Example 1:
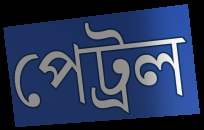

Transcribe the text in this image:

পেট্রল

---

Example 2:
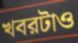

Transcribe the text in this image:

খবরটাও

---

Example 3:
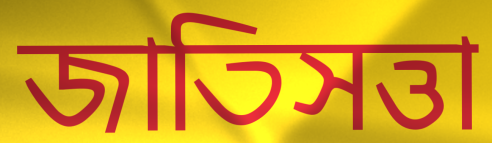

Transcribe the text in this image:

জাতিসত্তা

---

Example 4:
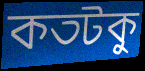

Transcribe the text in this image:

কতটকু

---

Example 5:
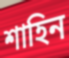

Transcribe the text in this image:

শাহিন